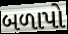
બળાપો